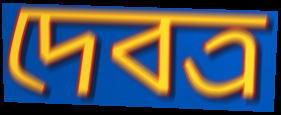
দেবত্র